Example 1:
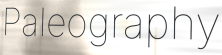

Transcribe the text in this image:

Paleography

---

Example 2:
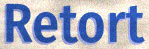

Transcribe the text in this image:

Retort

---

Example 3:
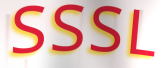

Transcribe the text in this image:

SSSL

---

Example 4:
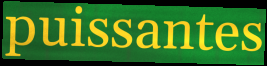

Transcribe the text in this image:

puissantes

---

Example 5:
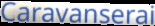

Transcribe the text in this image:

Caravanserai